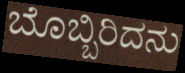
ಬೊಬ್ಬಿರಿದನು